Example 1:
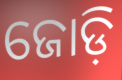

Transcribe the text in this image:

ଜୋଡ଼ି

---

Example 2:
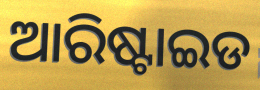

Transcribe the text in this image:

ଆରିଷ୍ଟାଇଡ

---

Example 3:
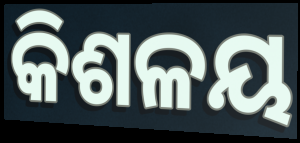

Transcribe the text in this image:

କିଶଳୟ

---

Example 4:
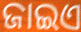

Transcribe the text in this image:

ଜାଇଏ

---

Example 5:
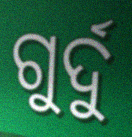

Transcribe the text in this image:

ଗୁର୍ଦୁ